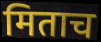
मिताच